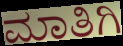
ಮಾತಿಗಿ